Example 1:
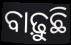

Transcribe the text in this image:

ବାଢ଼ୁଛି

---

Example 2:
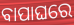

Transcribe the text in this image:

ବାପାଘରେ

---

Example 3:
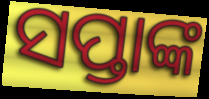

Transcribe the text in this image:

ସପ୍ତାଙ୍କ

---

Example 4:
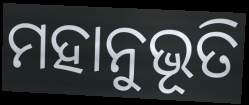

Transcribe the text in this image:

ମହାନୁଭୂତି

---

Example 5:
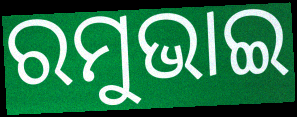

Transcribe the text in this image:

ରମୁଭାଇ